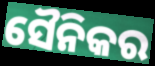
ସୈନିକର